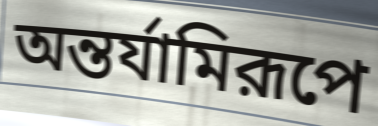
অন্তর্যামিরূপে